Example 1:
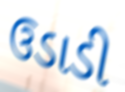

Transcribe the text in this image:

ઉડાડી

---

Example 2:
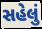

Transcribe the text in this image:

સહેલું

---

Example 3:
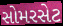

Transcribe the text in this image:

સોમરસેટ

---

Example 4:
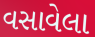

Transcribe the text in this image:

વસાવેલા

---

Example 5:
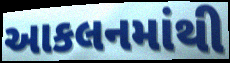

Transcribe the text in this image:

આકલનમાંથી